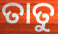
ତାତୁ